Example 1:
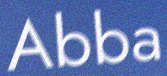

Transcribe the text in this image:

Abba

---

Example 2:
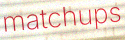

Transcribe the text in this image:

matchups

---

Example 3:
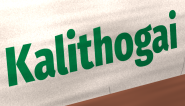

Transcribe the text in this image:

Kalithogai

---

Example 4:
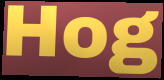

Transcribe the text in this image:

Hog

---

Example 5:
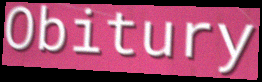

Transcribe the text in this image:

Obitury